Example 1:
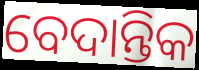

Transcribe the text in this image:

ବେଦାନ୍ତିକ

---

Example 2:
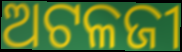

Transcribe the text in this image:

ଅଟଳଜୀ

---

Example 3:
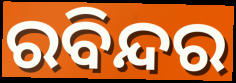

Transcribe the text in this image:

ରବିନ୍ଦର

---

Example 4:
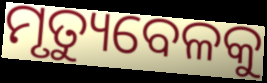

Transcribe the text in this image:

ମୃତ୍ୟୁବେଳକୁ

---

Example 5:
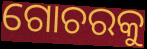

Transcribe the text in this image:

ଗୋଚରକୁ